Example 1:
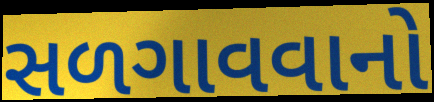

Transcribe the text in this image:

સળગાવવાનો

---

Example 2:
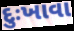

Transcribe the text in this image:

દુઃખાવા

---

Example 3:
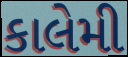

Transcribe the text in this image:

કાલેમી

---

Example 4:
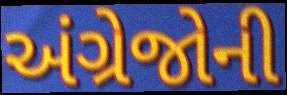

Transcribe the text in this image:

અંગ્રેજોની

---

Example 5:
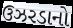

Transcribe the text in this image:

ઉઝરડાનો